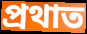
প্ৰথাত